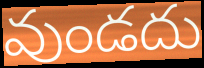
వుండదు